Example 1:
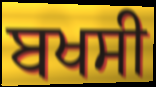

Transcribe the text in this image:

ਬਖਸੀ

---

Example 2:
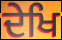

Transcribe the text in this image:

ਦੇਖਿ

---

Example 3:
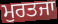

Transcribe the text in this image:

ਮੁਰਤਜਾ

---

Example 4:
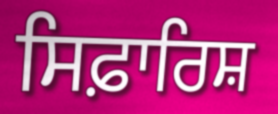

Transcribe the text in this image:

ਸਿਫ਼ਾਰਿਸ਼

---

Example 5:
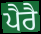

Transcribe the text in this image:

ਪੈਰੈ